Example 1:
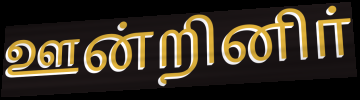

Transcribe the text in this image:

ஊன்றினிர்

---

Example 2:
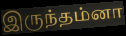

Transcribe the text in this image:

இருந்தம்னா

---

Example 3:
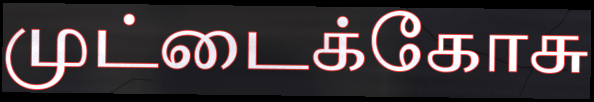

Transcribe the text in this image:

முட்டைக்கோசு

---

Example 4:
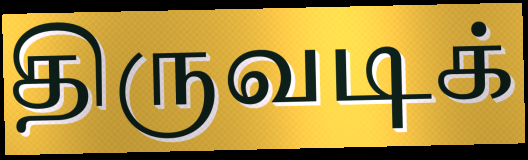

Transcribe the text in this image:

திருவடிக்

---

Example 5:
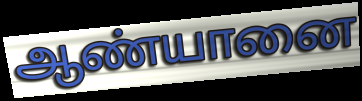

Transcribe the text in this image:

ஆண்யானை